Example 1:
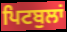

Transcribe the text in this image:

ਪਿਟਬੁਲਾਂ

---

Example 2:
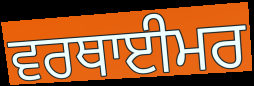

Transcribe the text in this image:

ਵਰਥਾਈਮਰ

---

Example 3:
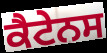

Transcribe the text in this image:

ਕੈਟੇਨਸ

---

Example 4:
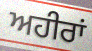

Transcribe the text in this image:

ਅਹੀਰਾਂ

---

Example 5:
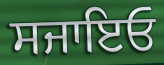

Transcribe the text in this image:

ਸਜਾਇਓ